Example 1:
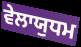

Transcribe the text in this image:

ਵੇਲਾਯੁਧਮ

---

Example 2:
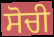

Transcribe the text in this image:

ਸੋਚੀ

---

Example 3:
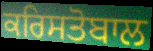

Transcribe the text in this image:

ਕਰਿਸਤੋਬਾਲ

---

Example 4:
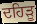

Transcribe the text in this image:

ਦਹਿੜੂ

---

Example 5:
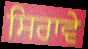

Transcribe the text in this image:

ਸਿਰਾਵੇ